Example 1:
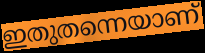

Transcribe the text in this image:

ഇതുതന്നെയാണ്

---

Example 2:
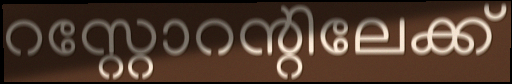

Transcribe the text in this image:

റസ്റ്റോറന്റിലേക്ക്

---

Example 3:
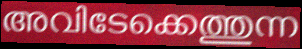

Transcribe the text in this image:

അവിടേക്കെത്തുന്ന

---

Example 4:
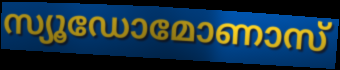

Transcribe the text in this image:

സ്യൂഡോമോണാസ്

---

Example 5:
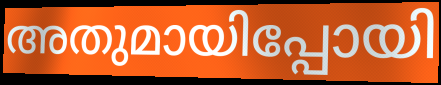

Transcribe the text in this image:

അതുമായിപ്പോയി